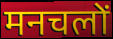
मनचलों